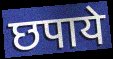
छपाये